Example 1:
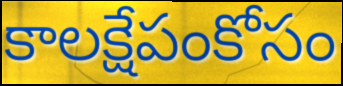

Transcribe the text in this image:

కాలక్షేపంకోసం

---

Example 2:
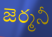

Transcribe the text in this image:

జెర్మనీ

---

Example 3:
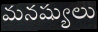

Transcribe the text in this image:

మనష్యులు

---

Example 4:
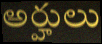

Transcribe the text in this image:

అర్హులు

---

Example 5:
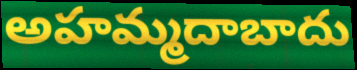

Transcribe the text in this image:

అహమ్మదాబాదు